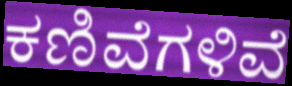
ಕಣಿವೆಗಳಿವೆ